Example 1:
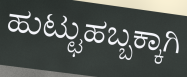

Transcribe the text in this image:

ಹುಟ್ಟುಹಬ್ಬಕ್ಕಾಗಿ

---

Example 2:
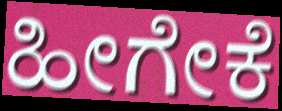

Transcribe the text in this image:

ಹೀಗೇಕೆ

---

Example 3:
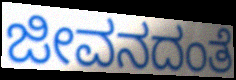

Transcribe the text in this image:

ಜೀವನದಂತೆ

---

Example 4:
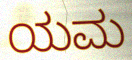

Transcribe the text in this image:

ಯಮ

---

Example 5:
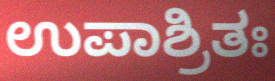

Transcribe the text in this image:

ಉಪಾಶ್ರಿತಃ